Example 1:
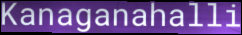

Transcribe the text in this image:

Kanaganahalli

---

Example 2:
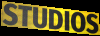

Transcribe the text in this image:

STUDIOS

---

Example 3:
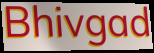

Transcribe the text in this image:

Bhivgad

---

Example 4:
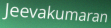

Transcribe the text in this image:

Jeevakumaran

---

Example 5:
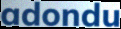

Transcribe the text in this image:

adondu